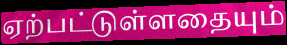
ஏற்பட்டுள்ளதையும்